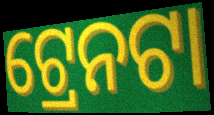
ଟ୍ରେନଟା